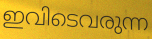
ഇവിടെവരുന്ന